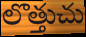
లొత్తుచు